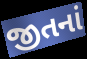
જીતનાં